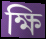
ক্ষি